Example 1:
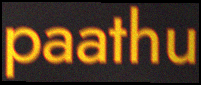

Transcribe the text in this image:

paathu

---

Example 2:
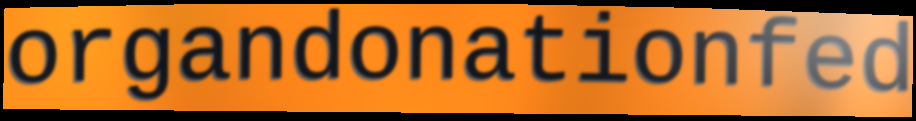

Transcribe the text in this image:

organdonationfed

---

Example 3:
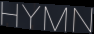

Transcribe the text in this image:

HYMN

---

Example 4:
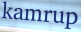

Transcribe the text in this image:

kamrup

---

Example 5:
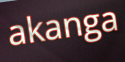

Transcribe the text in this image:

akanga